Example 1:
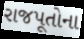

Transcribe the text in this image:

રાજપૂતોના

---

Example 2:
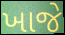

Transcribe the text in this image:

ખાજે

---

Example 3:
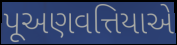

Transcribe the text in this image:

પૂઅણવત્તિયાએ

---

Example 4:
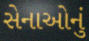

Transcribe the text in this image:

સેનાઓનું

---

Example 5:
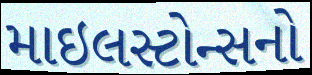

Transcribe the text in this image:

માઇલસ્ટોન્સનો